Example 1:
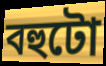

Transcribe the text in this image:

বহুটো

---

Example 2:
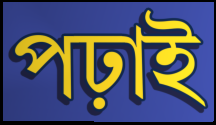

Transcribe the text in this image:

পঢ়াই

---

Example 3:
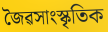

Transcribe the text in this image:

জৈৱসাংস্কৃতিক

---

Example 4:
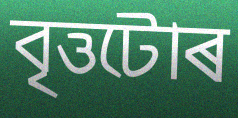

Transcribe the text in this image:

বৃত্তটোৰ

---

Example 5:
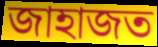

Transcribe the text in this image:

জাহাজত